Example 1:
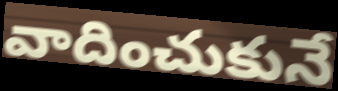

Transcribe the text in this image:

వాదించుకునే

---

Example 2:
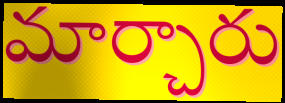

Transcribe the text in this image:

మార్చారు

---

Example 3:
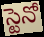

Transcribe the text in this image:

స్టెనో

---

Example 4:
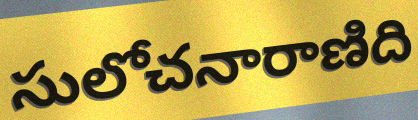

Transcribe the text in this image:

సులోచనారాణిది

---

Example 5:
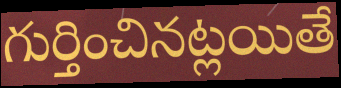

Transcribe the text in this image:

గుర్తించినట్లయితే